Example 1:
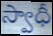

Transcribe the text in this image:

స్వాధీ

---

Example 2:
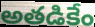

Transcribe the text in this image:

అతడికేం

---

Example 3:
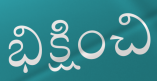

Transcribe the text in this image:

భిక్షించి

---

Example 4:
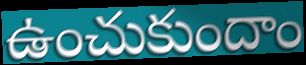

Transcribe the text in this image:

ఉంచుకుందాం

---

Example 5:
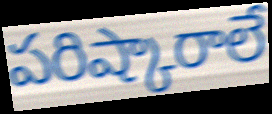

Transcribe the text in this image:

పరిష్కారాలే